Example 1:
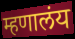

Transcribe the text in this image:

म्हणालंय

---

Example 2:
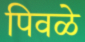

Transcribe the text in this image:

पिवळे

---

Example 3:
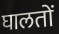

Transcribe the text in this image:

घालतों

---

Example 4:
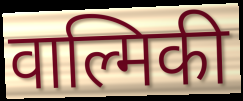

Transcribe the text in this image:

वाल्मिकी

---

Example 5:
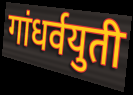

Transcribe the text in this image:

गांधर्वयुती